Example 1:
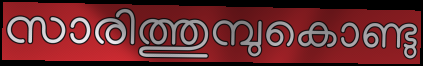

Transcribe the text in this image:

സാരിത്തുമ്പുകൊണ്ടു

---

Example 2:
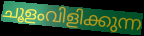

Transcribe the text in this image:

ചൂളംവിളിക്കുന്ന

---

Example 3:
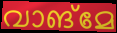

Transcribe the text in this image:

വാങ്മേ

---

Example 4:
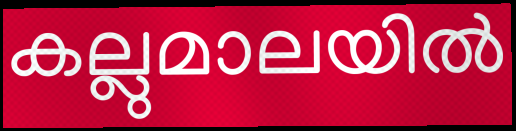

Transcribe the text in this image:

കല്ലുമാലയിൽ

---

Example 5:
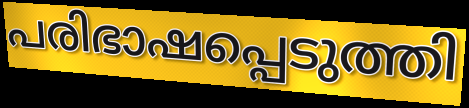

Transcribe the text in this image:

പരിഭാഷപ്പെടുത്തി